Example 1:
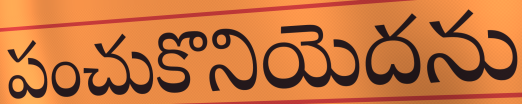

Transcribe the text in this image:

పంచుకొనియెదను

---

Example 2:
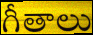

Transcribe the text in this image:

గీతాలు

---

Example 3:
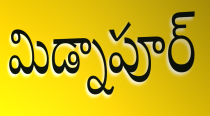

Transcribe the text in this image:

మిడ్నాపూర్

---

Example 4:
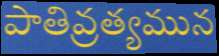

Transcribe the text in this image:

పాతివ్రత్యమున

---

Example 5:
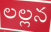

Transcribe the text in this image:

లల్లన